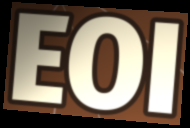
EOI